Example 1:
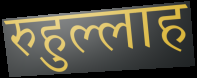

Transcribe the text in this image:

रुहुल्लाह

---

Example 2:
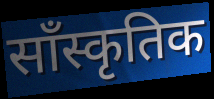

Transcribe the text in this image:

साँस्कृतिक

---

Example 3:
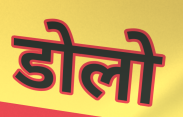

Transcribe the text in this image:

डोलो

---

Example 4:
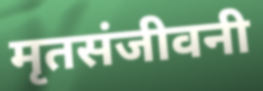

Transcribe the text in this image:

मृतसंजीवनी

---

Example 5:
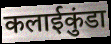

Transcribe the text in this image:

कलाईकुंडा